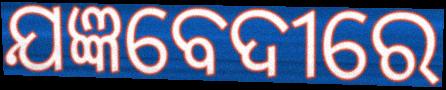
ଯଜ୍ଞବେଦୀରେ